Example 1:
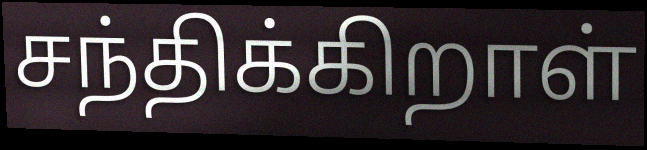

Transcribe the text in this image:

சந்திக்கிறாள்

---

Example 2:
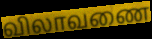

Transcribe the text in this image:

விலாவணை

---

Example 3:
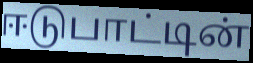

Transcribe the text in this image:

ஈடுபாட்டின்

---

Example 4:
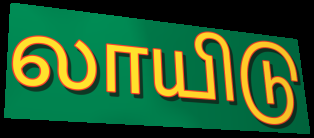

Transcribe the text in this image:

லாயிடு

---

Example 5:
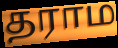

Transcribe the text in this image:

தராம